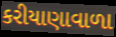
કરીયાણાવાળા